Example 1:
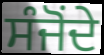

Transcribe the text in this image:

ਸੰਜੋਂਦੇ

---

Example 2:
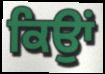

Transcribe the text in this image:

ਕਿਉਾਂ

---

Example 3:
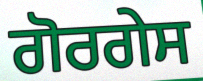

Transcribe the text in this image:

ਗੋਰਗੇਸ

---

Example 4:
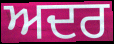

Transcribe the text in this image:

ਅਦਰ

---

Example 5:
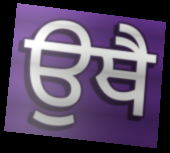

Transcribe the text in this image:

ਉਥੈ